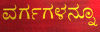
ವರ್ಗಗಳನ್ನೂ